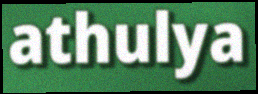
athulya